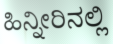
ಹಿನ್ನೀರಿನಲ್ಲಿ